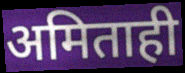
अमिताही